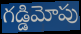
గడ్డిమోపు